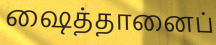
ஷைத்தானைப்